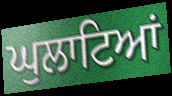
ਘੁਲਾਟਿਆਂ